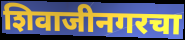
शिवाजीनगरचा